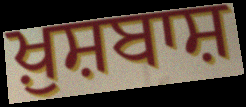
ਖ਼ੁਸ਼ਬਾਸ਼